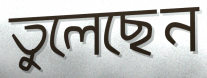
তুলেছেন